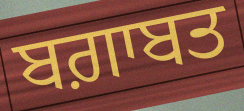
ਬਗ਼ਾਬਤ